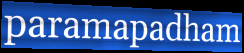
paramapadham